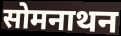
सोमनाथन